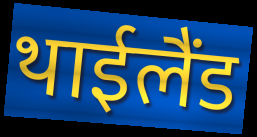
थाईलैंड